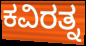
ಕವಿರತ್ನ